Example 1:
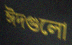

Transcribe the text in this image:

ঈদগুলো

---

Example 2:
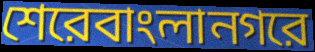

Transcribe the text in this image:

শেরেবাংলানগরে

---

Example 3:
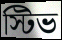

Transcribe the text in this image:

স্টিভ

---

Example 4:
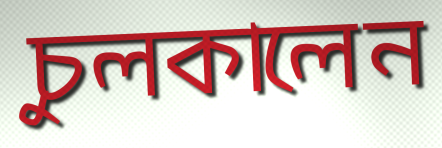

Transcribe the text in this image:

চুলকালেন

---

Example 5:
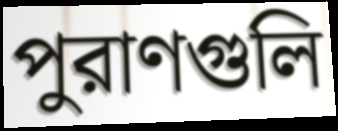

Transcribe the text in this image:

পুরাণগুলি